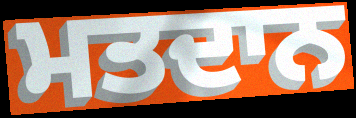
ਮਤਦਾਨ